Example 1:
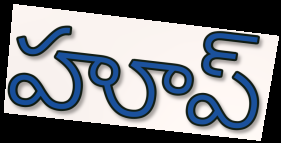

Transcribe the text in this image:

హూప్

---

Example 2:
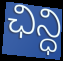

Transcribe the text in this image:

ఛిన్ధి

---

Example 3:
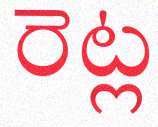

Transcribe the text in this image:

రెట్ల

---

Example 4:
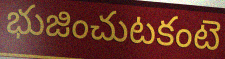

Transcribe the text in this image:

భుజించుటకంటె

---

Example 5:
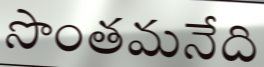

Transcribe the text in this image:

సొంతమనేది